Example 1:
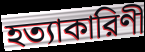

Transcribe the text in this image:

হত্যাকারিণী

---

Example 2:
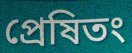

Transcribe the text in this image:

প্রেষিতং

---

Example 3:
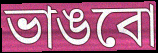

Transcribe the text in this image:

ভাঙবো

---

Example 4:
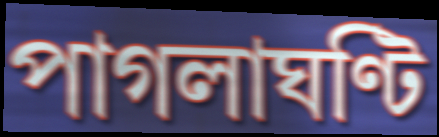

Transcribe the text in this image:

পাগলাঘণ্টি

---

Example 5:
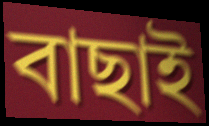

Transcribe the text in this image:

বাছাই